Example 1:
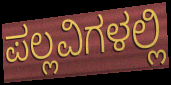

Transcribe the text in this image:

ಪಲ್ಲವಿಗಳಲ್ಲಿ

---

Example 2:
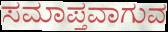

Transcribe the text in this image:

ಸಮಾಪ್ತವಾಗುವ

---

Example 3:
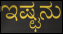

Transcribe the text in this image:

ಇಷ್ಟನು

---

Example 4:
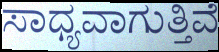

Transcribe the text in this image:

ಸಾಧ್ಯವಾಗುತ್ತಿವೆ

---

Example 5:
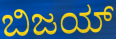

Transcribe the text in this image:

ಬಿಜಯ್